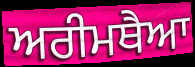
ਅਰੀਮਥੈਆ